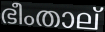
ഭീംതാല്